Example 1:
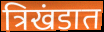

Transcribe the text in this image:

त्रिखंडात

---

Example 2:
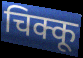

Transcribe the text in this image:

चिक्कू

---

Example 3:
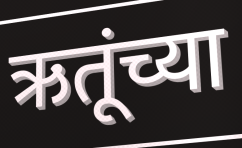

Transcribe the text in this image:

ऋतूंच्या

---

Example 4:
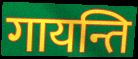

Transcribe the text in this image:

गायन्ति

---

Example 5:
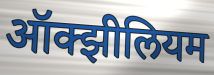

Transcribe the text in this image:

ऑक्झीलियम